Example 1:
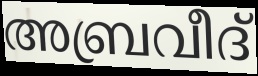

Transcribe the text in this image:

അബ്രവീദ്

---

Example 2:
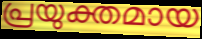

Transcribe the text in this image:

പ്രയുക്തമായ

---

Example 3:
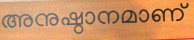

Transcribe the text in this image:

അനുഷ്ഠാനമാണ്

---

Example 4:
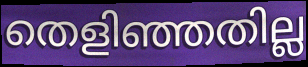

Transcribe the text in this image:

തെളിഞ്ഞതില്ല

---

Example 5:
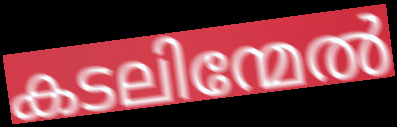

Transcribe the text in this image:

കടലിന്മേൽ